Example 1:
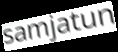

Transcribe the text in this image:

samjatun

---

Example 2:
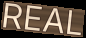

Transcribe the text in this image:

REAL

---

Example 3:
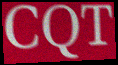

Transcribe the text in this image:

CQT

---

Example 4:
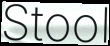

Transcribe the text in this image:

Stool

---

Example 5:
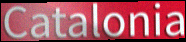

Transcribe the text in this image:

Catalonia